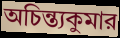
অচিন্ত্যকুমার